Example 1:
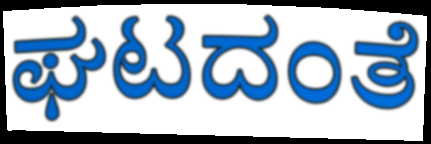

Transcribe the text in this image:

ಘಟದಂತೆ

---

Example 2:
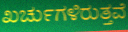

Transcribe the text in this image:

ಖರ್ಚುಗಳಿರುತ್ತವೆ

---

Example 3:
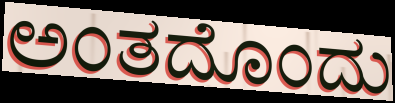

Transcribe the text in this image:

ಅಂತದೊಂದು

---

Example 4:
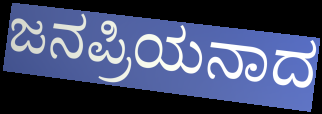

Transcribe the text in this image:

ಜನಪ್ರಿಯನಾದ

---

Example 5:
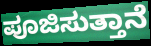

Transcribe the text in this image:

ಪೂಜಿಸುತ್ತಾನೆ